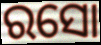
ରସୋ